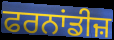
ਫਰਨਾਂਡੀਜ਼